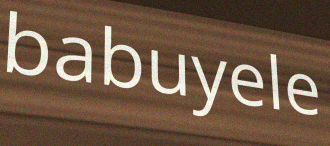
babuyele